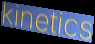
kinetics